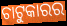
ଚାଟୁକାରର